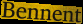
Bennent